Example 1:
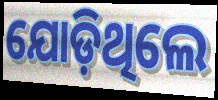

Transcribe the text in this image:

ଯୋଡ଼ିଥିଲେ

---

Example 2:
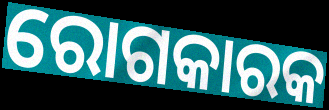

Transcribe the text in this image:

ରୋଗକାରକ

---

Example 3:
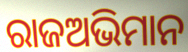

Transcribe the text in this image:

ରାଜଅଭିମାନ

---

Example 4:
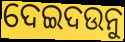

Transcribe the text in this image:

ଦେଇଦଉନୁ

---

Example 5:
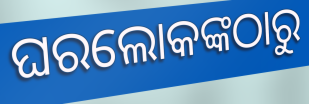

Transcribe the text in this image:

ଘରଲୋକଙ୍କଠାରୁ